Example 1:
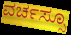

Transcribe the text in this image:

ವರ್ಚಸ್ಸೂ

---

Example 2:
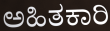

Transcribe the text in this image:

ಅಹಿತಕಾರಿ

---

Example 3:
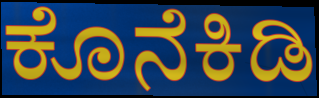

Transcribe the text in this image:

ಕೊನೆಕಿಡಿ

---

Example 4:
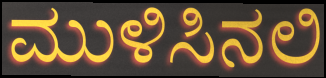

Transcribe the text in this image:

ಮುಳಿಸಿನಲಿ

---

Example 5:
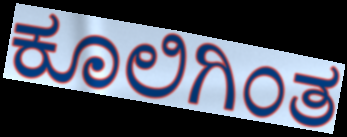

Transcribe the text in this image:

ಕೂಲಿಗಿಂತ